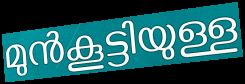
മുൻകൂട്ടിയുള്ള